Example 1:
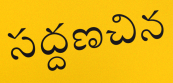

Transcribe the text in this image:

సద్దణచిన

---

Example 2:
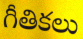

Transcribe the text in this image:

గీతికలు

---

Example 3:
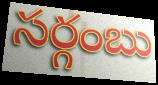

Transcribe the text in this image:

సర్గంబు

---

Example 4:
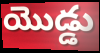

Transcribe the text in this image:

యొడ్డు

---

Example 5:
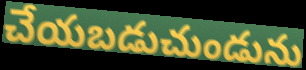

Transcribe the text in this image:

చేయబడుచుండును